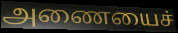
அணையைச்